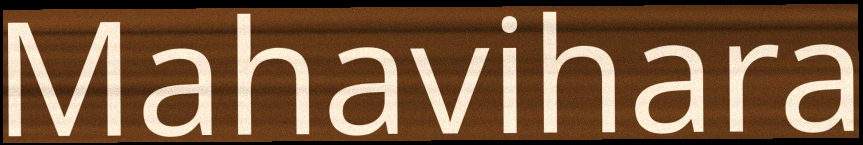
Mahavihara